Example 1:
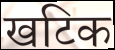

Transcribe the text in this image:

खटिक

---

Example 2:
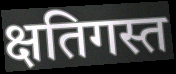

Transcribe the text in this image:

क्षतिगस्त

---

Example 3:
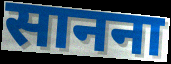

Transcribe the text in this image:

सानना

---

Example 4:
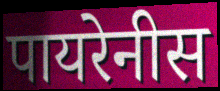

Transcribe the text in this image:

पायरेनीस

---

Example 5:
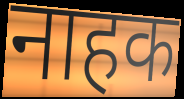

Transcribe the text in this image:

नाहक